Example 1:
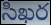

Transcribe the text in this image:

సిఖర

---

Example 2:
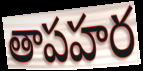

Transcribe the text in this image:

తాపహర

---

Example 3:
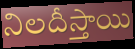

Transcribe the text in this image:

నిలదీస్తాయి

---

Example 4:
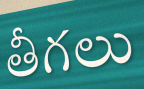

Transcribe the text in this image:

తీగలు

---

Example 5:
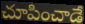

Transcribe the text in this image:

చూపించాడే